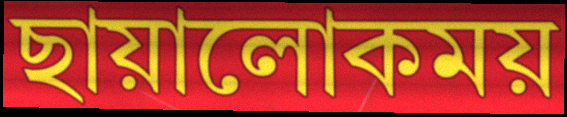
ছায়ালোকময়